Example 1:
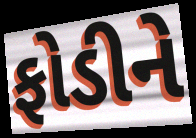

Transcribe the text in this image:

ફોડીને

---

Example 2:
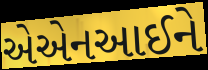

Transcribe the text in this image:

એએનઆઈને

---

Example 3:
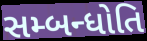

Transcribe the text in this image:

સમ્બન્ધોતિ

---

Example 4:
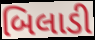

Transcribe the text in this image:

બિલાડી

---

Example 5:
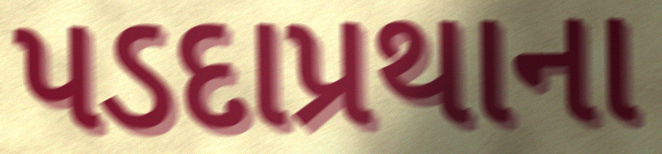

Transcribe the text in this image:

પડદાપ્રથાના